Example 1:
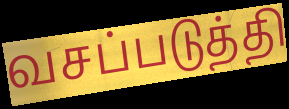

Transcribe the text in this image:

வசப்படுத்தி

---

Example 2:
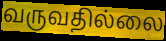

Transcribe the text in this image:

வருவதில்லை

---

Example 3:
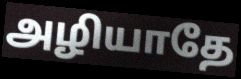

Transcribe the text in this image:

அழியாதே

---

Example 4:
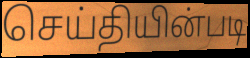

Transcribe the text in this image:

செய்தியின்படி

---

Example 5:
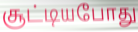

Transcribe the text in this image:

சூட்டியபோது